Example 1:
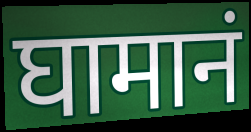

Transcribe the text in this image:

घामानं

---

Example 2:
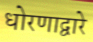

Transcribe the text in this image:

धोरणाद्वारे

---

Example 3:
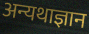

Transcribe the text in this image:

अन्यथाज्ञान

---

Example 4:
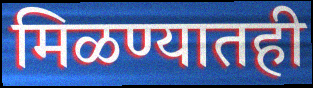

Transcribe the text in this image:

मिळण्यातही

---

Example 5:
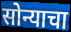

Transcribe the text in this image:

सोन्याचा